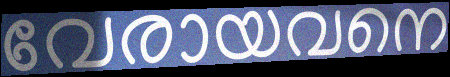
വേരായവനെ